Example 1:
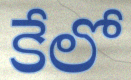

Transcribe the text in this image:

కేలో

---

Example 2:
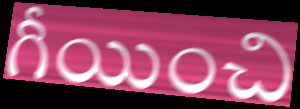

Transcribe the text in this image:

గీయించి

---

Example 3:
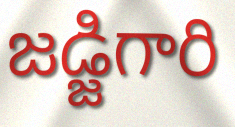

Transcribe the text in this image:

జడ్జిగారి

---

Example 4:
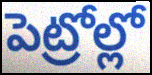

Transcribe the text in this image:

పెట్రోల్లో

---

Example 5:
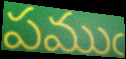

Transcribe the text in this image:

పముఁ